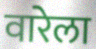
वारेला